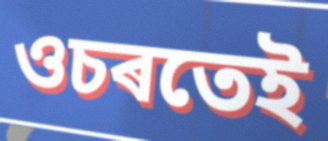
ওচৰতেই